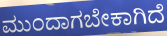
ಮುಂದಾಗಬೇಕಾಗಿದೆ